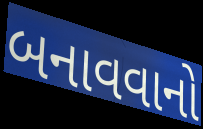
બનાવવાનો